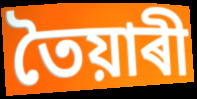
তৈয়াৰী